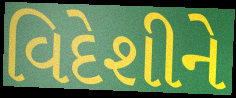
વિદેશીને